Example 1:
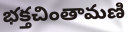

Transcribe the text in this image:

భక్తచింతామణి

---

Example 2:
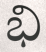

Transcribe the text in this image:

భి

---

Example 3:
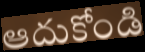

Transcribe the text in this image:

ఆదుకోండి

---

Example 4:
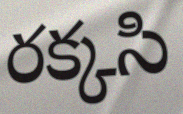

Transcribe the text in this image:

రక్కసి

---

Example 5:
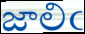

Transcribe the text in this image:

జాలిఁ